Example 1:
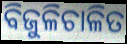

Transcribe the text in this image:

ବିଜୁଳିଚାଳିତ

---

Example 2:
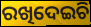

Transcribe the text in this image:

ରଖିଦେଇଚି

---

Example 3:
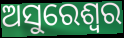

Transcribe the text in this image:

ଅସୁରେଶ୍ଵର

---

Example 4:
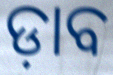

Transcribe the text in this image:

ଡ଼ାବ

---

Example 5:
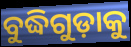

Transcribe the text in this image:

ବୁଦ୍ଧିଗୁଡ଼ାକୁ